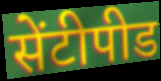
सेंटीपीड